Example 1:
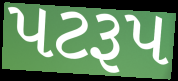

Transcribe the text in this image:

પટરૂપ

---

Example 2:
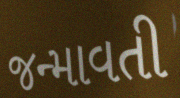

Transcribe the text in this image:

જન્માવતી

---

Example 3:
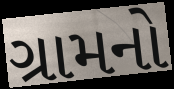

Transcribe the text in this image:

ગ્રામનો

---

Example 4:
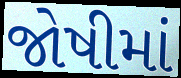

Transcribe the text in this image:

જોષીમાં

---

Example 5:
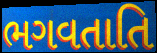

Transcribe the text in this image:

ભગવતાતિ